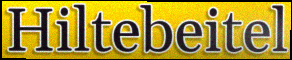
Hiltebeitel